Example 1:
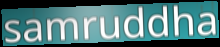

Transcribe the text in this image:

samruddha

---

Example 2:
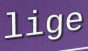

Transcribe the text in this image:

lige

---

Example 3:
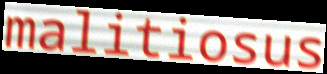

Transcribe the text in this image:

malitiosus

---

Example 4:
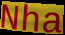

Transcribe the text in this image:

Nha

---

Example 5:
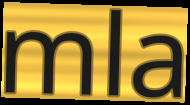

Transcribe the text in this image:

mla